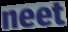
neet